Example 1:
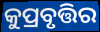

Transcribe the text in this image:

କୁପ୍ରବୃତ୍ତିର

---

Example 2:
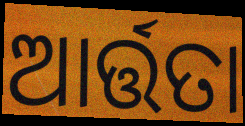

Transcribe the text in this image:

ଆର୍ତ୍ତତା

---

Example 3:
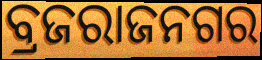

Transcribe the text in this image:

ବ୍ରଜରାଜନଗର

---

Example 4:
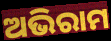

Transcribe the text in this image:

ଅଭିରାମ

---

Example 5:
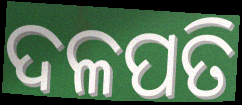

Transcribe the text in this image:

ଦଳପତି